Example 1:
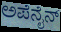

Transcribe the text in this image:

ಅಪೆನೈನ್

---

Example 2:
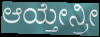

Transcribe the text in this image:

ಆಯ್ತೇನ್ರೀ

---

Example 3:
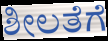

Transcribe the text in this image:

ಶೀಲತೆಗೆ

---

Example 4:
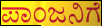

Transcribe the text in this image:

ಪಾಂಜನಿಗೆ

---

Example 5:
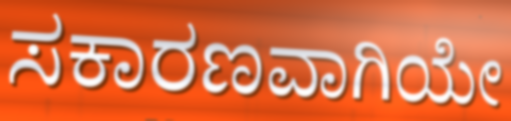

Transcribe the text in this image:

ಸಕಾರಣವಾಗಿಯೇ